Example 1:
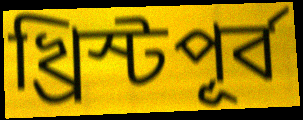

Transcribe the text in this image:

খ্রিস্টপূর্ব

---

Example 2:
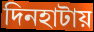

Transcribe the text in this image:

দিনহাটায়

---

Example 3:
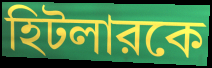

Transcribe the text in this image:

হিটলারকে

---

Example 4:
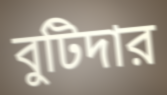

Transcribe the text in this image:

বুটিদার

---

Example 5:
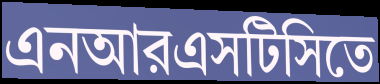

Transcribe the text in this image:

এনআরএসটিসিতে